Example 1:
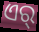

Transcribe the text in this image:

ଏର୍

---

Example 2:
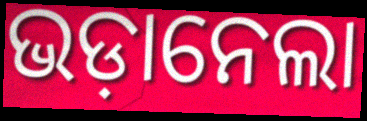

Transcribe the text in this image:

ଭଡ଼ାନେଲା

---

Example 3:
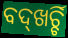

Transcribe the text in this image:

ବଦ୍‌ଖର୍ଚ୍ଚି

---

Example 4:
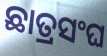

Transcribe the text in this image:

ଛାତ୍ରସଂଘ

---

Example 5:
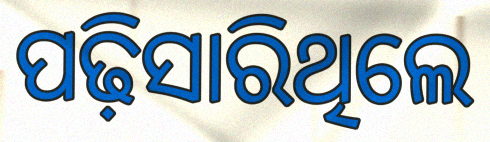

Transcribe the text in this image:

ପଢ଼ିସାରିଥିଲେ